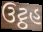
ઉટ્ઠહ